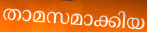
താമസമാക്കിയ